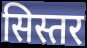
सिस्तर